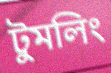
টুমলিং